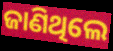
ଜାଣିଥିଲେ